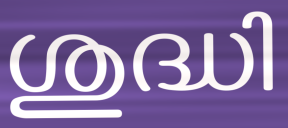
ശുദ്ധി